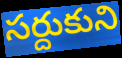
సర్దుకుని